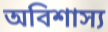
অবিশাস্য